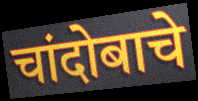
चांदोबाचे